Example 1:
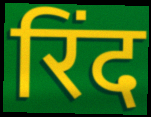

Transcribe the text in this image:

रिंद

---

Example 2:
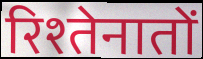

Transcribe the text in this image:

रिश्तेनातों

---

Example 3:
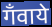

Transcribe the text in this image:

गँवाये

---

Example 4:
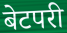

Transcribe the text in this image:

बेटपरी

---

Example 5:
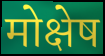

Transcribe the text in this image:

मोक्षेष